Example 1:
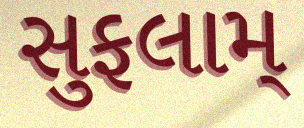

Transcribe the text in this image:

સુફલામ્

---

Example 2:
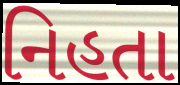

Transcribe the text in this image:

નિહતા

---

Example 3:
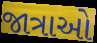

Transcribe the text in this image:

જાત્રાઓ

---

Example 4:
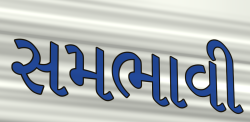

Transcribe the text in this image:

સમભાવી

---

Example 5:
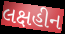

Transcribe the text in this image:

લક્ષહીન